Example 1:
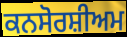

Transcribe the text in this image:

ਕਨਸੋਰਸ਼ੀਅਮ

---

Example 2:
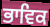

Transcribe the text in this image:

ਭਾਵਿਕ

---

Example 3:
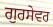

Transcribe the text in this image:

ਗੁਰਸੇਵਰ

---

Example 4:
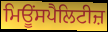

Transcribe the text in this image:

ਮਿਊਂਸਪੈਲਿਟੀਜ਼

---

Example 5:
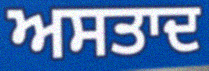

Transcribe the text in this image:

ਅਸਤਾਦ